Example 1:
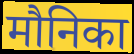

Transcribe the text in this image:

मौनिका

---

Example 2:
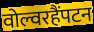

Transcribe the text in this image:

वोल्वरहैंपटन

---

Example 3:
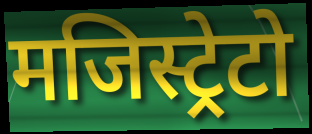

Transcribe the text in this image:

मजिस्ट्रेटो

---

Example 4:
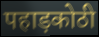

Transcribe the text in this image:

पहाड़कोठी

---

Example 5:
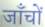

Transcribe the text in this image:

जाँचों